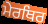
ਮੇਰਥਿਰ